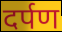
दर्पण